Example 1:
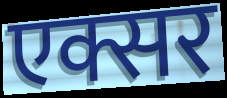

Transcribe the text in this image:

एक्सर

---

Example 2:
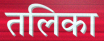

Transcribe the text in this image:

तलिका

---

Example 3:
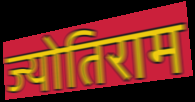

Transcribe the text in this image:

ज्योतिराम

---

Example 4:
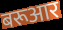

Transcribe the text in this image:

बरूआर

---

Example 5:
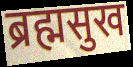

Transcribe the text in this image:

ब्रह्मसुख